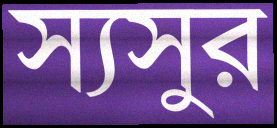
স্যসুর